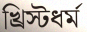
খ্রিস্টধর্ম